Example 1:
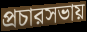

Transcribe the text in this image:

প্রচারসভায়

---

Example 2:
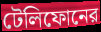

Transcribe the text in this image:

টেলিফোনের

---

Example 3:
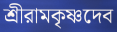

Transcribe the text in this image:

শ্রীরামকৃষ্ণদেব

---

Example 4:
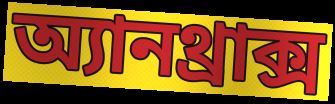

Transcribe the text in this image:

অ্যানথ্রাক্স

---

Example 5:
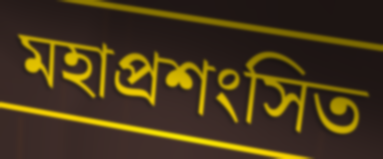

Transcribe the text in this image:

মহাপ্রশংসিত